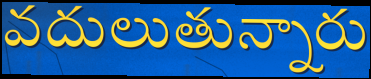
వదులుతున్నారు